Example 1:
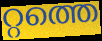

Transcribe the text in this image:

റ്റത്തെ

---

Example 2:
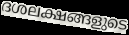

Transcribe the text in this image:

ദശലക്ഷങ്ങളുടെ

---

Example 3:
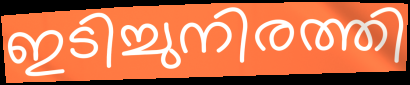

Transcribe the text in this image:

ഇടിച്ചുനിരത്തി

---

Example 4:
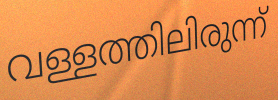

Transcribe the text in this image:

വള്ളത്തിലിരുന്ന്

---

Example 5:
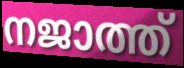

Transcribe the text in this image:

നജാത്ത്